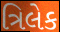
ત્રિલેક